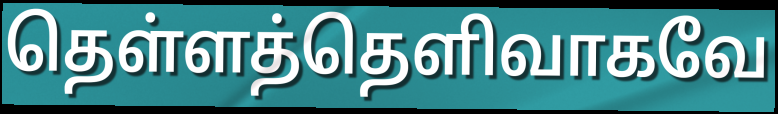
தெள்ளத்தெளிவாகவே